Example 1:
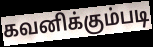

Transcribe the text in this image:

கவனிக்கும்படி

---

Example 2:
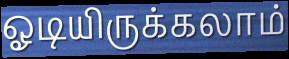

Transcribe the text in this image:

ஓடியிருக்கலாம்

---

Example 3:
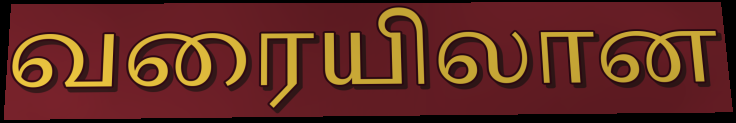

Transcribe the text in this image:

வரையிலான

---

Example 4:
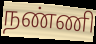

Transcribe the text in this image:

நண்ணி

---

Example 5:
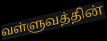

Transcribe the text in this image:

வள்ளுவத்தின்